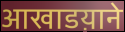
आखाडय़ाने